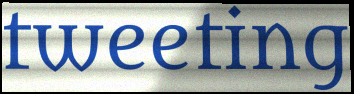
tweeting